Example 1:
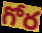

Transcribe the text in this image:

గోర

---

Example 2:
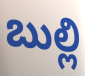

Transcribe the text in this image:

బుల్లి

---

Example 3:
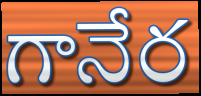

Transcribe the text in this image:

గానేర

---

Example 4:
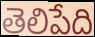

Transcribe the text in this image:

తెలిపేది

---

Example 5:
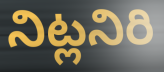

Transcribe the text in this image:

నిట్లనిరి